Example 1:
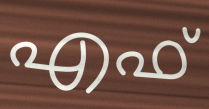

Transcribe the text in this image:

എഫ്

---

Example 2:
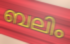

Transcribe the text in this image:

ബലിം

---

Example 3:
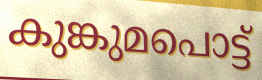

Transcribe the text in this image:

കുങ്കുമപൊട്ട്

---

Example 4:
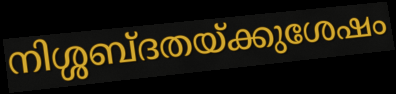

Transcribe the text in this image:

നിശ്ശബ്ദതയ്ക്കുശേഷം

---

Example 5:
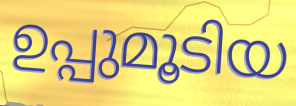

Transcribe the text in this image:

ഉപ്പുമൂടിയ